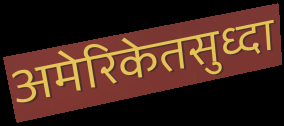
अमेरिकेतसुध्दा